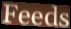
Feeds